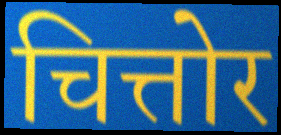
चित्तोर